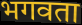
भगवता